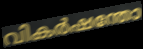
വികർഷന്തോ